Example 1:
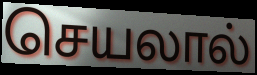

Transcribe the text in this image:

செயலால்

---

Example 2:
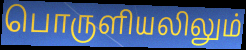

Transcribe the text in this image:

பொருளியலிலும்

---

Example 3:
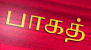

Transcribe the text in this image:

பாகத்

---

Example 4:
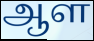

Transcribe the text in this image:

ஆள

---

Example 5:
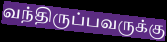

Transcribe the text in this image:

வந்திருப்பவருக்கு